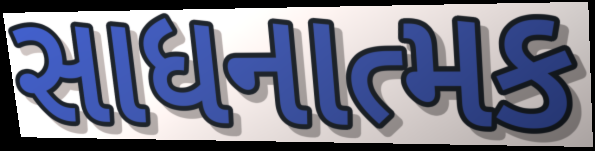
સાધનાત્મક